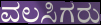
ವಲಸಿಗರು